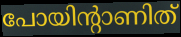
പോയിന്റാണിത്